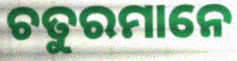
ଚତୁରମାନେ